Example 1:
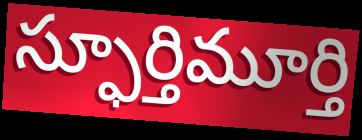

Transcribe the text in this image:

స్ఫూర్తిమూర్తి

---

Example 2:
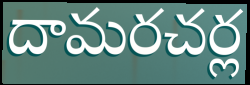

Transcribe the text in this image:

దామరచర్ల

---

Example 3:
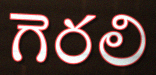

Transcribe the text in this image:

గెరలి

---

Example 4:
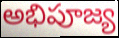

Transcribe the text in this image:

అభిపూజ్య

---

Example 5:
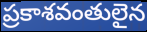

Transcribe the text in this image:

ప్రకాశవంతులైన